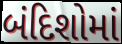
બંદિશોમાં